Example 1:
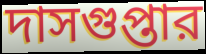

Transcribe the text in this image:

দাসগুপ্তার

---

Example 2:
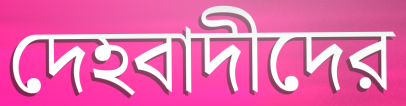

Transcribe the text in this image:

দেহবাদীদের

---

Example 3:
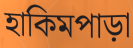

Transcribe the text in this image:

হাকিমপাড়া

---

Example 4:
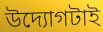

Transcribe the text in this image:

উদ্যোগটাই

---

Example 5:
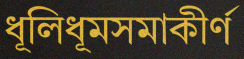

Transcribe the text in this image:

ধূলিধূমসমাকীর্ণ